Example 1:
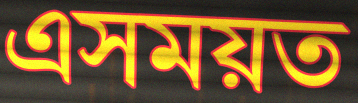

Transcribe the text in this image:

এসময়ত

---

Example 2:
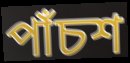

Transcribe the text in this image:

পাঁচশ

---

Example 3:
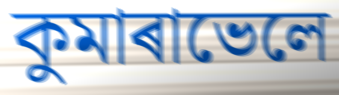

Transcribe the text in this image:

কুমাৰাভেলে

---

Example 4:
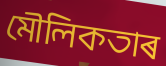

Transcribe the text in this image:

মৌলিকতাৰ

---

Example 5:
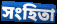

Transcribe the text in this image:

সংহিতা